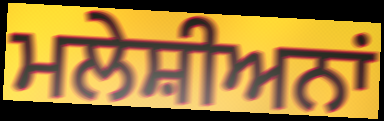
ਮਲੇਸ਼ੀਅਨਾਂ